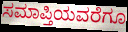
ಸಮಾಪ್ತಿಯವರೆಗೂ